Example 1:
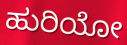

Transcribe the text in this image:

ಹುರಿಯೋ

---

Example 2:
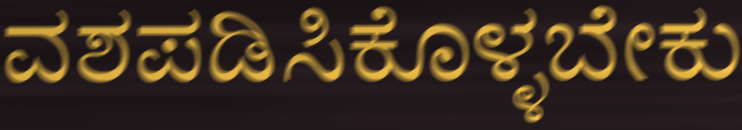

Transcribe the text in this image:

ವಶಪಡಿಸಿಕೊಳ್ಳಬೇಕು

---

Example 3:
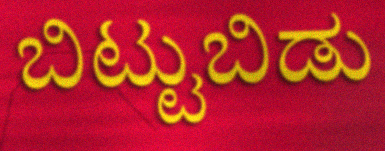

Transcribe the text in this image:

ಬಿಟ್ಟುಬಿಡು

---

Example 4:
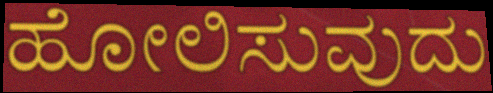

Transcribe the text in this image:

ಹೋಲಿಸುವುದು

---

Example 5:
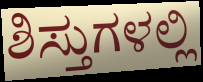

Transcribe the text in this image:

ಶಿಸ್ತುಗಳಲ್ಲಿ